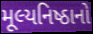
મૂલ્યનિષ્ઠાનો